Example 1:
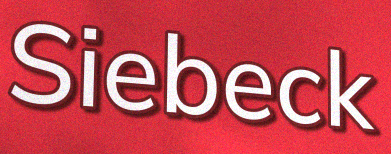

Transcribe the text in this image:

Siebeck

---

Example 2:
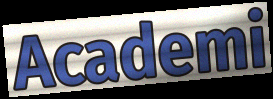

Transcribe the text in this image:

Academi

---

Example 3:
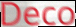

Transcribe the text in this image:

Deco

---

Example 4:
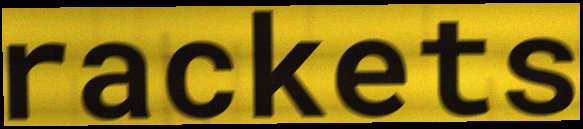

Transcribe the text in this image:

rackets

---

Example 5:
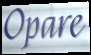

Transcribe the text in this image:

Opare